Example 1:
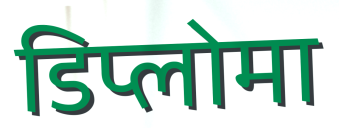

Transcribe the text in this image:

डिप्‍लोमा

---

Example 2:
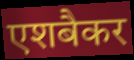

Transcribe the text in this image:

एशबैकर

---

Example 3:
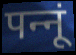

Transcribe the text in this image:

पन्नूं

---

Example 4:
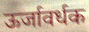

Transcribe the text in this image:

ऊर्जावर्धक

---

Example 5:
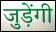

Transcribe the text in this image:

जुड़ेंगी